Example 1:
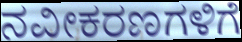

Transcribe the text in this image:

ನವೀಕರಣಗಳಿಗೆ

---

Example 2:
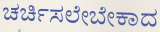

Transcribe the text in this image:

ಚರ್ಚಿಸಲೇಬೇಕಾದ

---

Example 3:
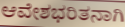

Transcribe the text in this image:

ಆವೇಶಭರಿತನಾಗಿ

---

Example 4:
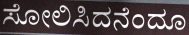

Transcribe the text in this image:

ಸೋಲಿಸಿದನೆಂದೂ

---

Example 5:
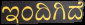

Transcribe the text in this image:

ಇಂದಿಗಿದೆ